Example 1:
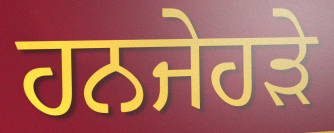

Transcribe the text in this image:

ਹਨਜੇਹੜੇ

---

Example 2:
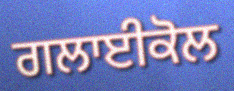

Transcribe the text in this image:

ਗਲਾਈਕੋਲ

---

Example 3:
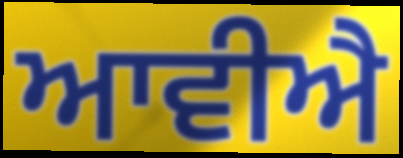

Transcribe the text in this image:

ਆਵੀਐ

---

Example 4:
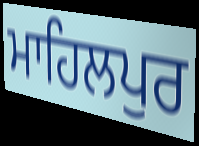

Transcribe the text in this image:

ਮਾਹਿਲਪੁਰ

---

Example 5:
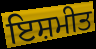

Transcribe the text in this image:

ਇਸ਼ਮੀਤ